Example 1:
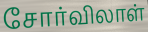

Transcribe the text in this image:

சோர்விலாள்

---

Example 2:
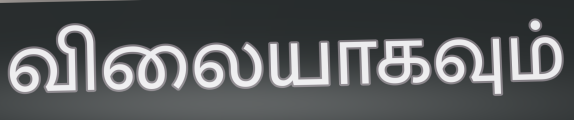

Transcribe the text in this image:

விலையாகவும்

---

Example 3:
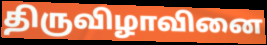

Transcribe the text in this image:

திருவிழாவினை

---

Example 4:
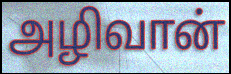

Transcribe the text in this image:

அழிவான்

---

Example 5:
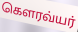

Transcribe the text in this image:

கௌரவ்யர்